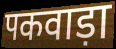
पकवाड़ा